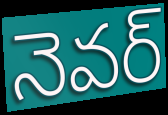
నెవర్